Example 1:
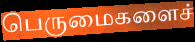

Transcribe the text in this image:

பெருமைகளைச்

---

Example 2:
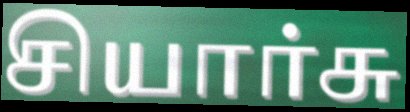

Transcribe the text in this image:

சியார்சு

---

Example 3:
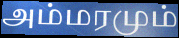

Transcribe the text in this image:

அம்மரமும்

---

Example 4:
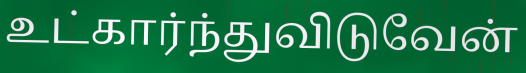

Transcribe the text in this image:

உட்கார்ந்துவிடுவேன்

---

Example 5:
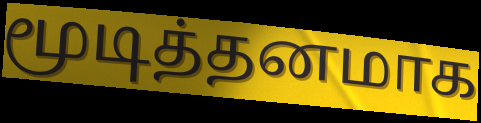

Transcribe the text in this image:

மூடித்தனமாக